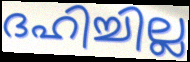
ദഹിച്ചില്ല